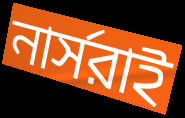
নার্সরাই